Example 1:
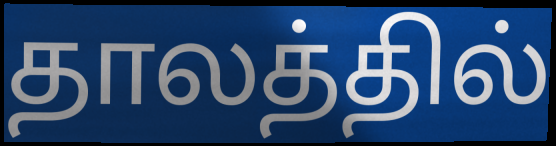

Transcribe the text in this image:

தாலத்தில்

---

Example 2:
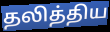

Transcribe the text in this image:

தலித்திய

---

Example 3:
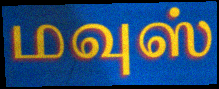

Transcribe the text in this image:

மவுஸ்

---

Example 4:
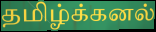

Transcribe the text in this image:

தமிழ்க்கனல்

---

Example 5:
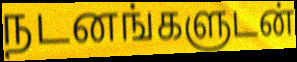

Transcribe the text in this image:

நடனங்களுடன்